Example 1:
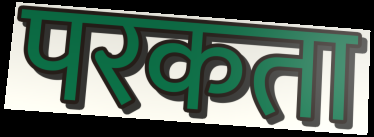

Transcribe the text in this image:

परकता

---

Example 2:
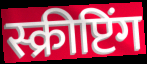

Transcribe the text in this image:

स्क्रीप्टिंग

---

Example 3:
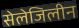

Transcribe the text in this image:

सेलेजिलीन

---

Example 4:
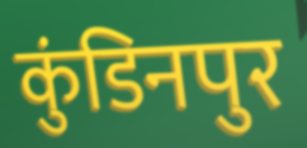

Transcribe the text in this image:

कुंडिनपुर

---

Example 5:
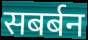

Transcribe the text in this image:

सबर्बन